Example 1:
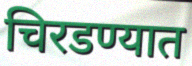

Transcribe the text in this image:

चिरडण्यात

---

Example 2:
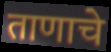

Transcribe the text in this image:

ताणाचे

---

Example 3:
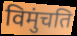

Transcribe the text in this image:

विमुंचति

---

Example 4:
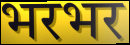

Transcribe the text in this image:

भरभर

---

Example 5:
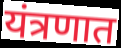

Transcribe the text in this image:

यंत्रणात